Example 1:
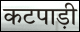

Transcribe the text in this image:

कटपाड़ी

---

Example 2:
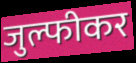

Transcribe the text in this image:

जुल्फीकर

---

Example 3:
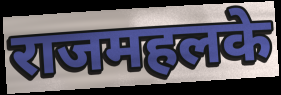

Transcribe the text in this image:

राजमहलके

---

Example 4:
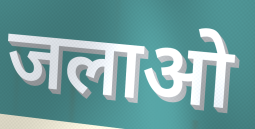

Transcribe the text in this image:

जलाओ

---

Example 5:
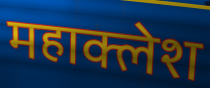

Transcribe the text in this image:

महाक्लेश